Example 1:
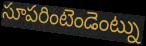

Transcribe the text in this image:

సూపరింటెండెంట్ను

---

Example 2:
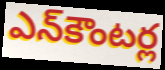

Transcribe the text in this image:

ఎన్‌కౌంటర్ల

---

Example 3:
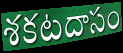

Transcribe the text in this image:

శకటదాసం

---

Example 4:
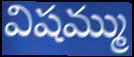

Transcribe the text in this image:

విషమ్ము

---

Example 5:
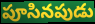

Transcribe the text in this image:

పూసినపుడు